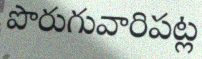
పొరుగువారిపట్ల